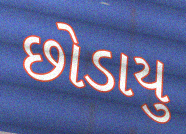
છોડાયુ